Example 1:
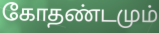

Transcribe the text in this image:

கோதண்டமும்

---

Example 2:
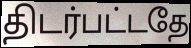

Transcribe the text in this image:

திடர்பட்டதே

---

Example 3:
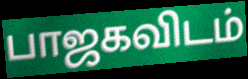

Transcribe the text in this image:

பாஜகவிடம்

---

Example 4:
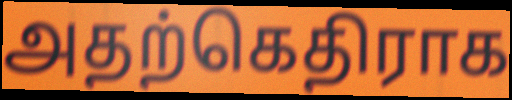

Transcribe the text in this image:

அதற்கெதிராக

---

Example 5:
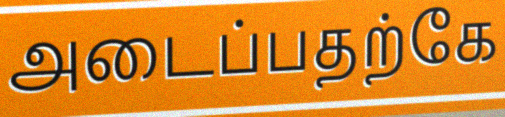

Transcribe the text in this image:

அடைப்பதற்கே